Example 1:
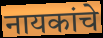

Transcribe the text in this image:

नायकांचे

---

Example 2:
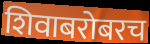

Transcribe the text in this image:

शिवाबरोबरच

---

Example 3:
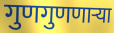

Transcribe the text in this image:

गुणगुणणाऱ्या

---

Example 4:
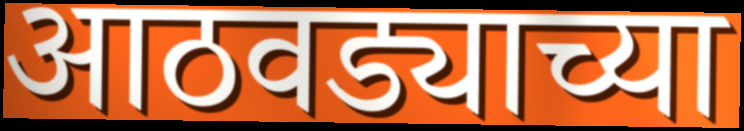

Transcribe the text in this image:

आठवड्याच्या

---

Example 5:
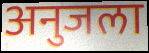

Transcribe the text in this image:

अनुजला